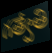
గత్వేతి